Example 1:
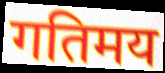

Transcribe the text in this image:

गतिमय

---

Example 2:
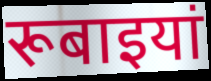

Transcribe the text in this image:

रूबाइयां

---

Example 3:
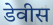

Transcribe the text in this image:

डेवीस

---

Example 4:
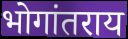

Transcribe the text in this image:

भोगांतराय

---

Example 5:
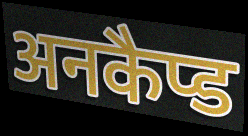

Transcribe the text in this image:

अनकैप्ड